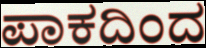
ಪಾಕದಿಂದ